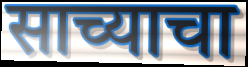
साच्याचा